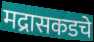
मद्रासकडचे